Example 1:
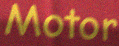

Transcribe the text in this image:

Motor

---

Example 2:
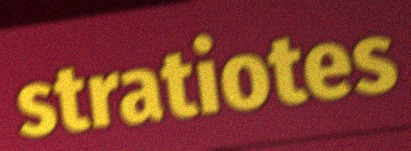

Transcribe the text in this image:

stratiotes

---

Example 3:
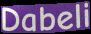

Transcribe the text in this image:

Dabeli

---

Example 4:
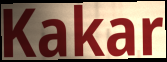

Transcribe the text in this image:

Kakar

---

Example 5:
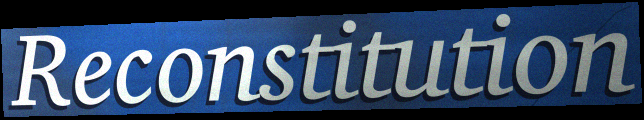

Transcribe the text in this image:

Reconstitution